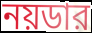
নয়ডার